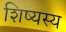
शिष्यस्य